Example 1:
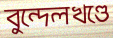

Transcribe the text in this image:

বুন্দেলখণ্ডে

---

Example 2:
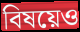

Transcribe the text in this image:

বিষয়েও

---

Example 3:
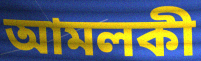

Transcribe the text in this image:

আমলকী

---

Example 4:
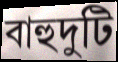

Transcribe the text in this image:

বাহুদুটি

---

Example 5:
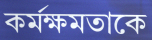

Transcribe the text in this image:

কর্মক্ষমতাকে